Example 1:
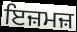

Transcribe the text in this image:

ਇਜ਼ਮਜ਼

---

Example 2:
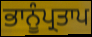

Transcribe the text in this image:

ਭਾਨੂੰਪ੍ਰਤਾਪ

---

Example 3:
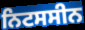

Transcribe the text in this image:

ਨਿਟਸਸੀਨ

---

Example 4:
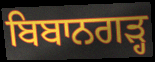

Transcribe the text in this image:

ਬਿਬਾਨਗੜ੍ਹ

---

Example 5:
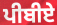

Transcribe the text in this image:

ਪੀਬੀਏ